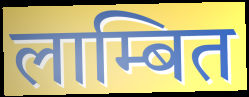
लाम्बित